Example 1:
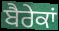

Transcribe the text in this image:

ਬੈਰੇਕਾਂ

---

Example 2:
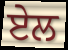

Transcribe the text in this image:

ਏਲ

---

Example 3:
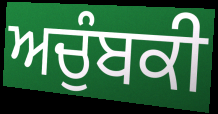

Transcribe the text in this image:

ਅਚੁੰਬਕੀ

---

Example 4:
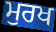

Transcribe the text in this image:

ਮੁਰਖ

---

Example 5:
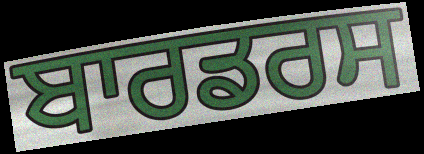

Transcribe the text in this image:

ਬਾਰਡਰਸ